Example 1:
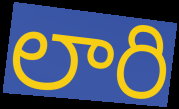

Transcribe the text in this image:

లారి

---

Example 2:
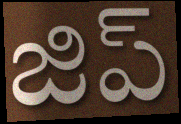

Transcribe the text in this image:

జిప్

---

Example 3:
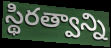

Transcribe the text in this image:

స్థిరత్వాన్ని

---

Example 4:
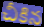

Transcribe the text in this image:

చీకిన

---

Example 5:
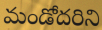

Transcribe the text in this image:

మండోదరిని